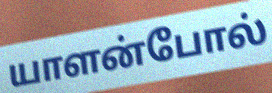
யாளன்போல்